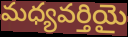
మధ్యవర్తియై